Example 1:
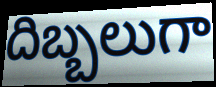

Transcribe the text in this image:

దిబ్బలుగా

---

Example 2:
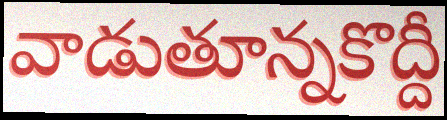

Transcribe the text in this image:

వాడుతూన్నకొద్దీ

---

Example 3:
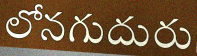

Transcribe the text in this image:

లోనగుదురు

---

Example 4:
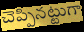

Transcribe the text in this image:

చెప్పినట్టుగా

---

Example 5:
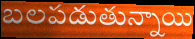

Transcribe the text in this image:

బలపడుతున్నాయి